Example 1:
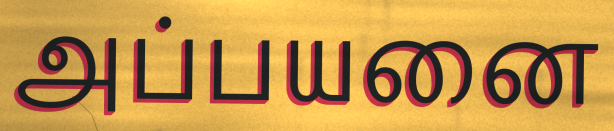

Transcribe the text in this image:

அப்பயனை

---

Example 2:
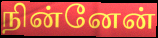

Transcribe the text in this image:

நின்னேன்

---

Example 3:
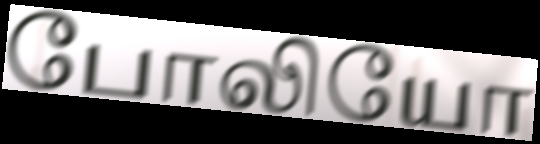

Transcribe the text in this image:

போலியோ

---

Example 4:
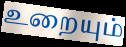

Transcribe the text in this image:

உறையும்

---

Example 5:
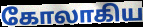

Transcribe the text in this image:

கோலாகிய